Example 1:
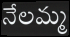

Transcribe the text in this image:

నేలమ్మ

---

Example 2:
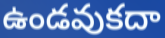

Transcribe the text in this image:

ఉండవుకదా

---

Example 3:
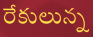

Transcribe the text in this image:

రేకులున్న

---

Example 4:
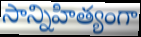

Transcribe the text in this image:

సాన్నిహిత్యంగా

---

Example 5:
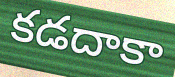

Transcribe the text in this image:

కడదాకా